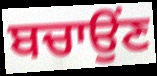
ਬਚਾਉਂਣ